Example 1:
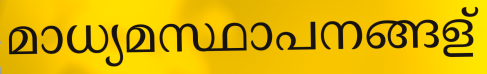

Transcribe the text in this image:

മാധ്യമസ്ഥാപനങ്ങള്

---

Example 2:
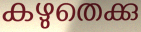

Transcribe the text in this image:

കഴുതെക്കു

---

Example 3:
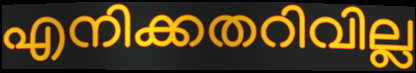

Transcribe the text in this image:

എനിക്കതറിവില്ല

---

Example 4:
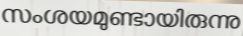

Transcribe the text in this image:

സംശയമുണ്ടായിരുന്നു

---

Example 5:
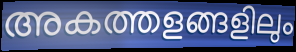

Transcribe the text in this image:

അകത്തളങ്ങളിലും